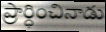
ప్రార్ధించినాడు